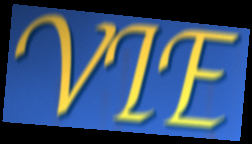
VIE